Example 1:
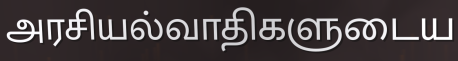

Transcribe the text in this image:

அரசியல்வாதிகளுடைய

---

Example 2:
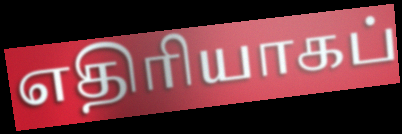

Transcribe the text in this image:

எதிரியாகப்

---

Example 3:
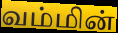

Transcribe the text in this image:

வம்மின்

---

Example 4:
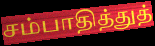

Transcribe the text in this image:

சம்பாதித்துத்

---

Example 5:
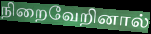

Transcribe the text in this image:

நிறைவேறினால்